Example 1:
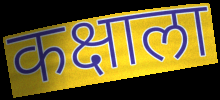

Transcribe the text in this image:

कक्षाला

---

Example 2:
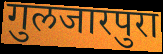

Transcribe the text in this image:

गुलजारपुरा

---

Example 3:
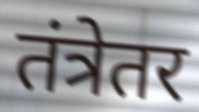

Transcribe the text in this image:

तंत्रेतर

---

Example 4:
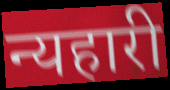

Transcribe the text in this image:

न्यहारी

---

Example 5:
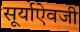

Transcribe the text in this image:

सूर्याऐवजी